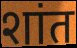
शांत